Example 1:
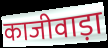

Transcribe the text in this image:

काजीवाड़ा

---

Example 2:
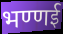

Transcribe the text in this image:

भण्णई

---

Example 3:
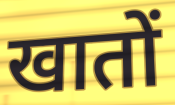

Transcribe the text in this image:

खातों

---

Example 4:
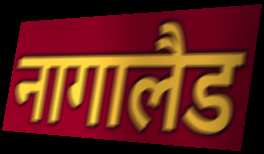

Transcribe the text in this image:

नागालैड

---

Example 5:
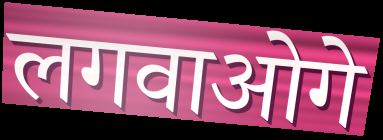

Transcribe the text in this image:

लगवाओगे